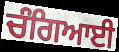
ਚੰਗਿਆਈ